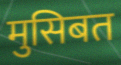
मुसिबत